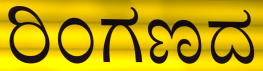
ರಿಂಗಣದ